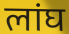
लांघ